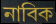
নাবিক